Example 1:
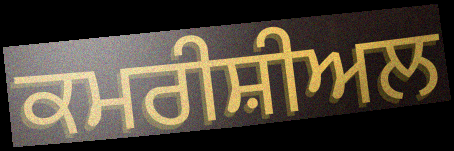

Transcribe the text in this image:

ਕਮਰੀਸ਼ੀਅਲ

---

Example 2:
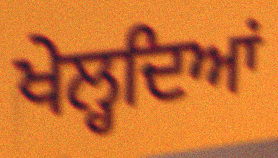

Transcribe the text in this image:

ਖੇਲ੍ਹਦਿਆਂ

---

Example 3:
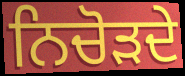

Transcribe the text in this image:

ਨਿਚੋੜਦੇ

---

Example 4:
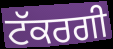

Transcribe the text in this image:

ਟੱਕਰਗੀ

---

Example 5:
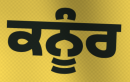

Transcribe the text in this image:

ਕਨੂੰਰ